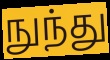
நுந்து